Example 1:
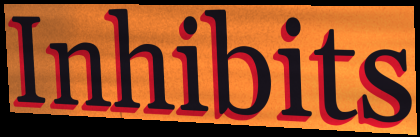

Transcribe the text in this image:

Inhibits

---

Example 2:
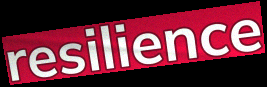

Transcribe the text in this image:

resilience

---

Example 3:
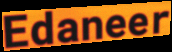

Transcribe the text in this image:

Edaneer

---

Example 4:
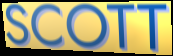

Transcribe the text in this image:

SCOTT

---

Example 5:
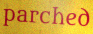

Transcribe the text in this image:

parched